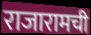
राजारामची